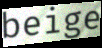
beige